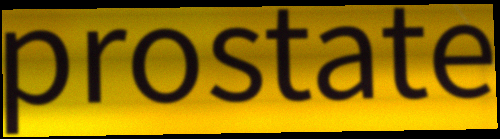
prostate